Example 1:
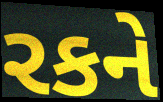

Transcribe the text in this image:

રકને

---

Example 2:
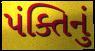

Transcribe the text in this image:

પંક્તિનું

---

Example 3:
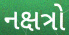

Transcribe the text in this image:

નક્ષત્રો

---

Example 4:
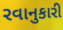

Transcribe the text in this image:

રવાનુકારી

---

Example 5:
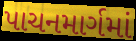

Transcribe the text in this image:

પાચનમાર્ગમાં